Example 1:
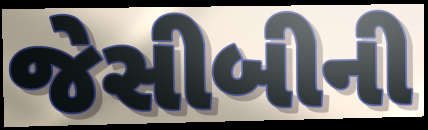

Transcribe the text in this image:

જેસીબીની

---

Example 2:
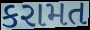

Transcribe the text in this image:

કરામત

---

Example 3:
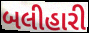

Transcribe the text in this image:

બલીહારી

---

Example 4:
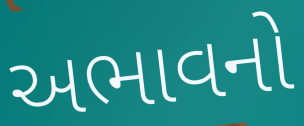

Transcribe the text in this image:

અભાવનો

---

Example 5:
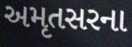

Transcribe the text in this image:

અમૃતસરના